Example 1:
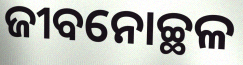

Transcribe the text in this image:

ଜୀବନୋଚ୍ଛଳ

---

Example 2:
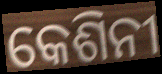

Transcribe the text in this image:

କେଶିନୀ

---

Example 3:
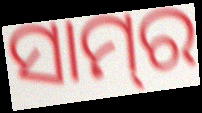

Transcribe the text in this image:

ସାମ୍‌ର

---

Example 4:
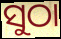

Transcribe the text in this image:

ସୁଠା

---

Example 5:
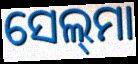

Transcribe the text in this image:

ସେଲ୍‌ମା